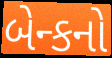
બેન્કનો